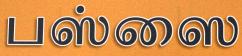
பஸ்ஸை